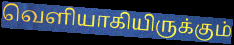
வெளியாகியிருக்கும்